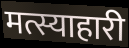
मत्स्याहारी